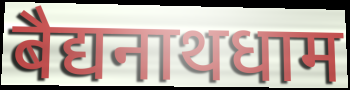
बैद्यनाथधाम